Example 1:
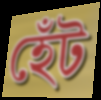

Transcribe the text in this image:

হেঁট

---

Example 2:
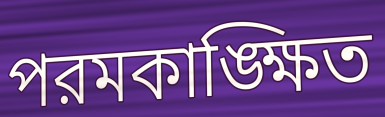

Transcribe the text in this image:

পরমকাঙ্ক্ষিত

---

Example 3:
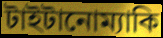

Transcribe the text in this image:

টাইটানোম্যাকি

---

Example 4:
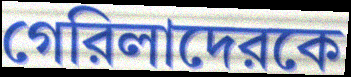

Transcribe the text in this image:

গেরিলাদেরকে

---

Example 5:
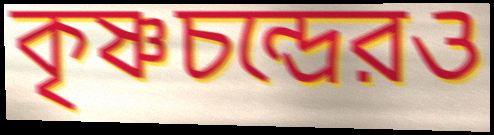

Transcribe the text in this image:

কৃষ্ণচন্দ্রেরও